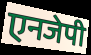
एनजेपी